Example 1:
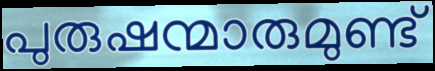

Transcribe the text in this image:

പുരുഷന്മാരുമുണ്ട്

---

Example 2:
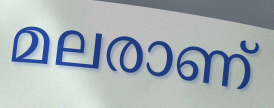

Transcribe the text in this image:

മലരാണ്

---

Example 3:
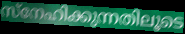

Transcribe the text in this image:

സ്നേഹിക്കുന്നതിലൂടെ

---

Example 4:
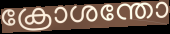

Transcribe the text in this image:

ക്രോശന്തോ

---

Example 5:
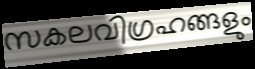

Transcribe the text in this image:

സകലവിഗ്രഹങ്ങളും